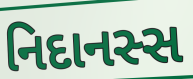
નિદાનસ્સ